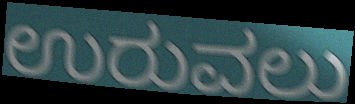
ಉರುವಲು